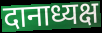
दानाध्यक्ष